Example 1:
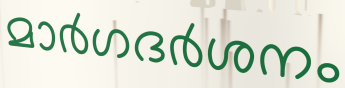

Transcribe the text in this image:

മാർഗദർശനം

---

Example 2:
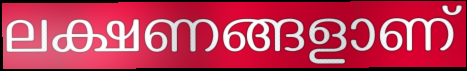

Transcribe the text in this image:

ലക്ഷണങ്ങളാണ്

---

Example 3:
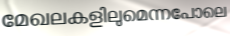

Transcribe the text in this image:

മേഖലകളിലുമെന്നപോലെ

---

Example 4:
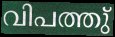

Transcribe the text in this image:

വിപത്തു്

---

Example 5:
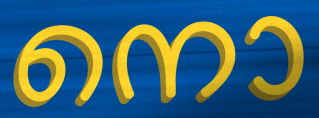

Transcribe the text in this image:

നൊ